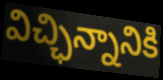
విచ్ఛిన్నానికి